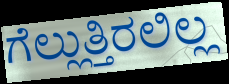
ಗೆಲ್ಲುತ್ತಿರಲಿಲ್ಲ